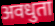
अवधुता